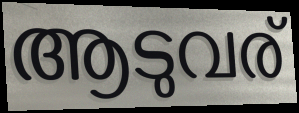
ആടുവര്